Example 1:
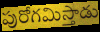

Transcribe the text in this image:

పురోగమిస్తాడు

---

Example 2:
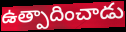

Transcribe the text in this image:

ఉత్పాదించాడు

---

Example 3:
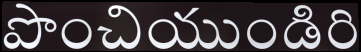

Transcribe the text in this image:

పొంచియుండిరి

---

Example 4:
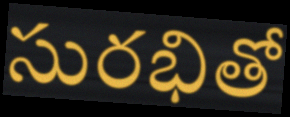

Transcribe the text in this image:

సురభితో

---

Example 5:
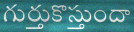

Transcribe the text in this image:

గుర్తుకొస్తుందా